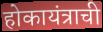
होकायंत्राची